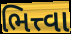
ભિત્ત્વા